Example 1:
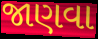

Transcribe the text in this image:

જાણવા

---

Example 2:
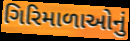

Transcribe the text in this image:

ગિરિમાળાઓનું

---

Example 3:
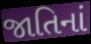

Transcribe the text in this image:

જાતિનાં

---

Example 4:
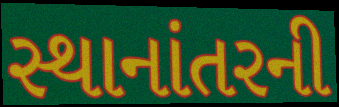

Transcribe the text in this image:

સ્થાનાંતરની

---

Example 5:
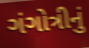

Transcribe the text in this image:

ગંગોત્રીનું